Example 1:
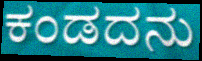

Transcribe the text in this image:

ಕಂಡದನು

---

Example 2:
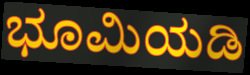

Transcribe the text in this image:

ಭೂಮಿಯಡಿ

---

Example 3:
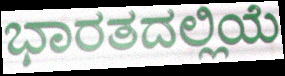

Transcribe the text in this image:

ಭಾರತದಲ್ಲಿಯೆ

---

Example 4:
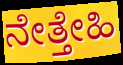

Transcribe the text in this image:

ನೇತ್ತೇಹಿ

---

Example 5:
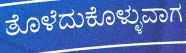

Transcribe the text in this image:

ತೊಳೆದುಕೊಳ್ಳುವಾಗ